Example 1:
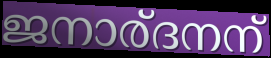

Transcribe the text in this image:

ജനാര്ദനന്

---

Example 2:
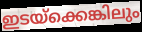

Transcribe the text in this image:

ഇടയ്ക്കെങ്കിലും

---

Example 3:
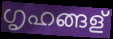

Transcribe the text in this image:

ഗൃഹങ്ങള്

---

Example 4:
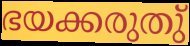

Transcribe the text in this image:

ഭയക്കരുതു്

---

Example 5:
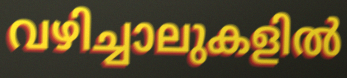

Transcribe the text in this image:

വഴിച്ചാലുകളിൽ